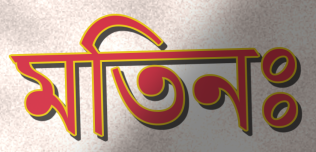
মতিনঃ